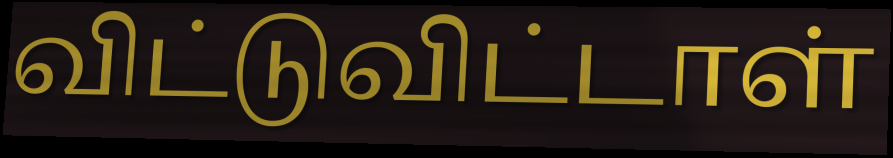
விட்டுவிட்டாள்